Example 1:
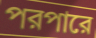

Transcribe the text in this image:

পরপারে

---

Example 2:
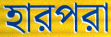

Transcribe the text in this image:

হারপরা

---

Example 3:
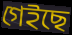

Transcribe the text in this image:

গেইছে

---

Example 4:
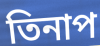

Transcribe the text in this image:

তিনাপ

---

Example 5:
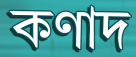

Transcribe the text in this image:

কণাদ